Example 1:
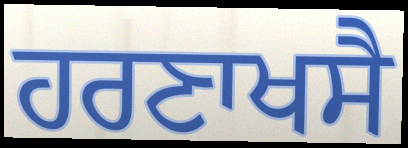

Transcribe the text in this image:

ਹਰਣਾਖਸੈ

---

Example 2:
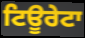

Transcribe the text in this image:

ਟਿਊਰੇਟਾ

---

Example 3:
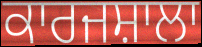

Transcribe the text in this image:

ਕਾਰਜਸ਼ਾਲਾ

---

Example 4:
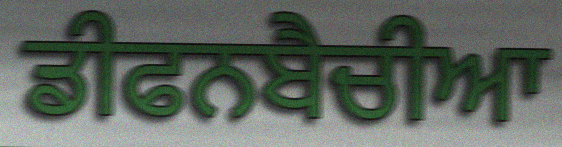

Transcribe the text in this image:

ਡੀਫਨਬੈਚੀਆ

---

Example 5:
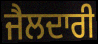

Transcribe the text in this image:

ਜੈਲਦਾਰੀ